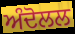
ਅੰਦੋਲਲ